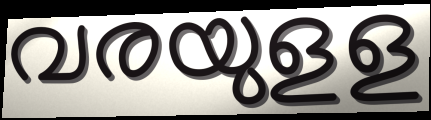
വരയുളള